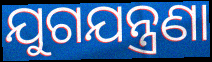
ଯୁଗଯନ୍ତ୍ରଣା